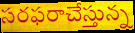
సరఫరాచేస్తున్న